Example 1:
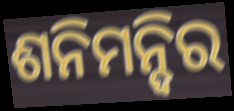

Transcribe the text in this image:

ଶନିମନ୍ଦିର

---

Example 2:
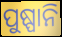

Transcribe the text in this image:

ପୁଷ୍ପାନି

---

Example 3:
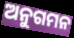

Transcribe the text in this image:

ଅନୁଗମନ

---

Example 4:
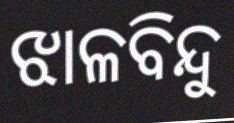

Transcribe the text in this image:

ଝାଳବିନ୍ଦୁ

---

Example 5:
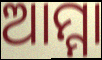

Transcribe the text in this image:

ଆମ୍ମା